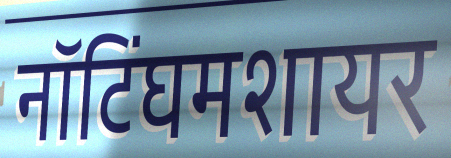
नॉटिंघमशायर